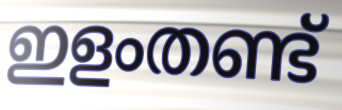
ഇളംതണ്ട്